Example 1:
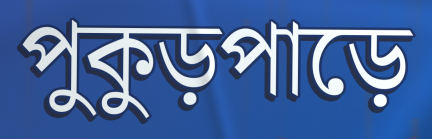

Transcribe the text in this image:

পুকুড়পাড়ে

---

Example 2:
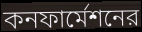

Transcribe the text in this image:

কনফার্মেশনের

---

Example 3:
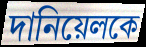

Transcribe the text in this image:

দানিয়েলকে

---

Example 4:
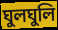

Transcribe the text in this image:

ঘুলঘুলি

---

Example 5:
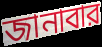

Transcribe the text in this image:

জানাবার